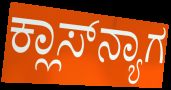
ಕ್ಲಾಸ್‌ನ್ಯಾಗ